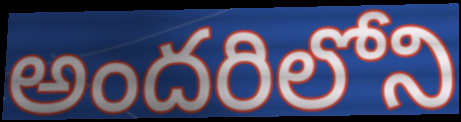
అందరిలోని